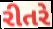
રીતરે